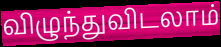
விழுந்துவிடலாம்